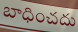
బాధించదు